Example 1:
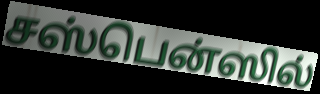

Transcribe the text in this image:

சஸ்பென்ஸில்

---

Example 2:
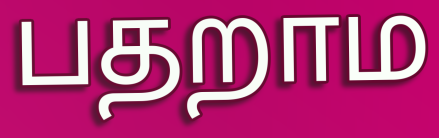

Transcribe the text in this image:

பதறாம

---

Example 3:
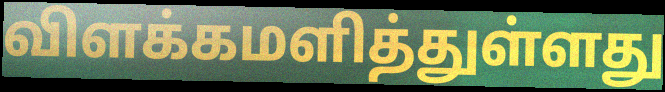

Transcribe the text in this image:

விளக்கமளித்துள்ளது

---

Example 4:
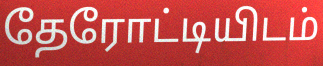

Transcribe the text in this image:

தேரோட்டியிடம்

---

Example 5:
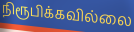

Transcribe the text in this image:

நிரூபிக்கவில்லை